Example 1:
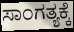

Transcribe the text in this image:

ಸಾಂಗತ್ಯಕ್ಕೆ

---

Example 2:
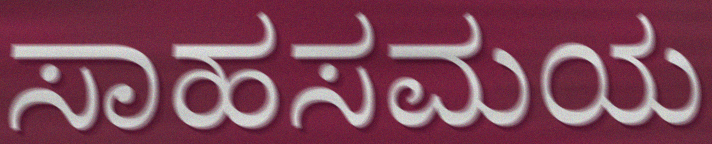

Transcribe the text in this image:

ಸಾಹಸಮಯ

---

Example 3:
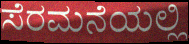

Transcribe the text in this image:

ಸೆರಮನೆಯಲ್ಲಿ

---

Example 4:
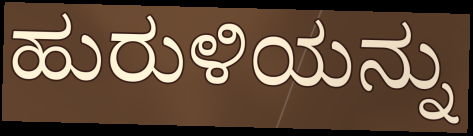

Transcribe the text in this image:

ಹುರುಳಿಯನ್ನು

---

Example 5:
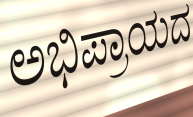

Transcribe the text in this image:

ಅಭಿಪ್ರಾಯದ